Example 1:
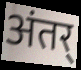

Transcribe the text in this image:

अंतर्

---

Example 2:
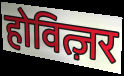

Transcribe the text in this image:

होवित्ज़र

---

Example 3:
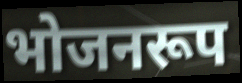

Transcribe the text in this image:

भोजनरूप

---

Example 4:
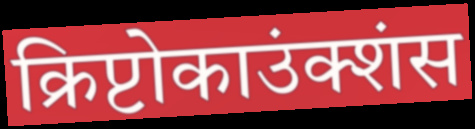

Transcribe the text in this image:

क्रिप्टोकाउंक्शंस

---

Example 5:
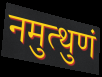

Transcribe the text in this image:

नमुत्थुणं